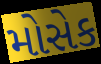
મોસેક